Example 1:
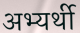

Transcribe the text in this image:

अभ्यर्थी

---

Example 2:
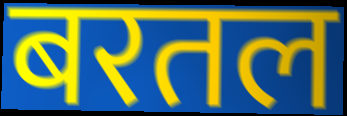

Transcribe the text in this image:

बरतल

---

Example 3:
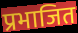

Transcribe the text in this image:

प्रभाजित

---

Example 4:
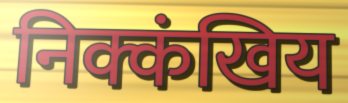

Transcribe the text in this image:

निक्कंखिय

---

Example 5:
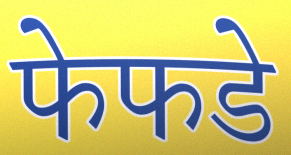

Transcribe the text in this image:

फेफडे